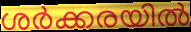
ശർക്കരയിൽ